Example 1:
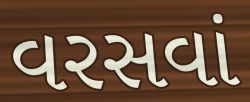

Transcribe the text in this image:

વરસવાં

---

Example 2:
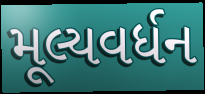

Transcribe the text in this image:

મૂલ્યવર્ધન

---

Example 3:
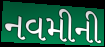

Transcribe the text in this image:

નવમીની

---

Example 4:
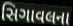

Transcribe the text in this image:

સિગાવલના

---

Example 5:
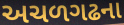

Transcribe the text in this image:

અચળગઢના